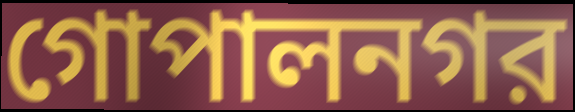
গোপালনগর